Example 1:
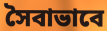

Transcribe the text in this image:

সৈবাভাবে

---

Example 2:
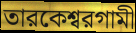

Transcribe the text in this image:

তারকেশ্বরগামী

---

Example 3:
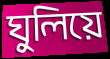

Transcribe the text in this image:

ঘুলিয়ে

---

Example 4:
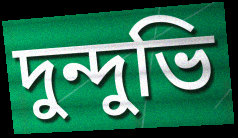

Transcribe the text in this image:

দুন্দুভি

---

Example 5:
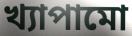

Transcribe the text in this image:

খ্যাপামো